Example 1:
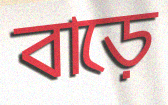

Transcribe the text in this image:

বাড়ে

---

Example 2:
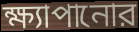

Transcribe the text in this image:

ক্ষ্যাপানোর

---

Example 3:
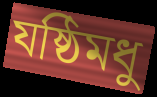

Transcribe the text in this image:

যষ্ঠিমধু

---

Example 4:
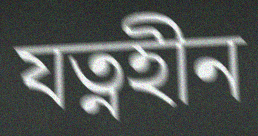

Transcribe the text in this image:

যত্নহীন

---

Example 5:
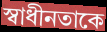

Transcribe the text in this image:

স্বাধীনতাকে